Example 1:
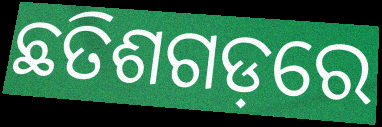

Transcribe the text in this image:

ଛତିଶଗଡ଼ରେ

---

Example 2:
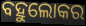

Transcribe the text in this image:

ବହୁଲୋକର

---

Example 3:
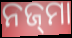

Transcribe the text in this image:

ନଜ୍‌ମା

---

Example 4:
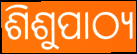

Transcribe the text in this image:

ଶିଶୁପାଠ୍ୟ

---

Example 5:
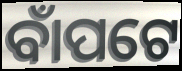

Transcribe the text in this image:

ବାଁପଟେ